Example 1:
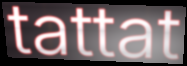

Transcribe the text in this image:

tattat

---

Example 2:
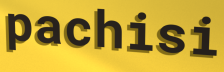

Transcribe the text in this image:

pachisi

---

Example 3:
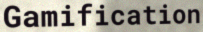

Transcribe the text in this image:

Gamification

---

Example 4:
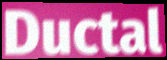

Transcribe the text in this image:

Ductal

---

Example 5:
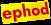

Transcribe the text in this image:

ephod